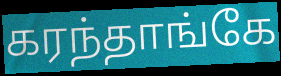
கரந்தாங்கே